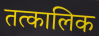
तत्कालिक